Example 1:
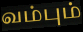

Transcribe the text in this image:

வம்பும்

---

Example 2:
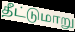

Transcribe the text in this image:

தீட்டுமாறு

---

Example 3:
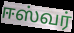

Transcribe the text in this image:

ஈஸ்வர்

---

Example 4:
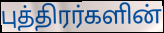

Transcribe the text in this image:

புத்திரர்களின்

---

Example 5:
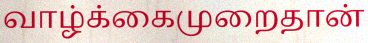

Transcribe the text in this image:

வாழ்க்கைமுறைதான்